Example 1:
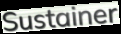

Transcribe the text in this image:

Sustainer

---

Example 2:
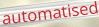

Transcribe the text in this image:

automatised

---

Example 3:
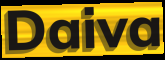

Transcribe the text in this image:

Daiva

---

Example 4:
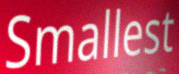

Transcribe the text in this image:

Smallest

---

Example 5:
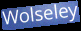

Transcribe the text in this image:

Wolseley